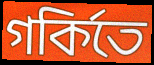
গর্কিতে